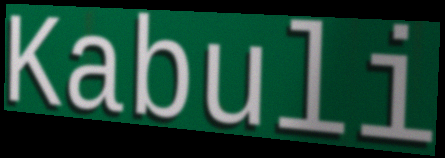
Kabuli